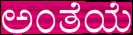
ಅಂತೆಯೆ